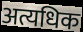
अत्यधिक